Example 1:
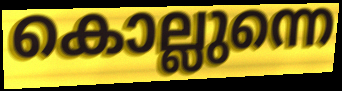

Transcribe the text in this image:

കൊല്ലുന്നെ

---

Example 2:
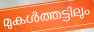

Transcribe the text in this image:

മുകൾത്തട്ടിലും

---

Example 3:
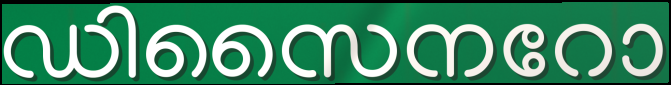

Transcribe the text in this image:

ഡിസൈനറോ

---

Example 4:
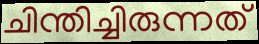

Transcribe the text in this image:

ചിന്തിച്ചിരുന്നത്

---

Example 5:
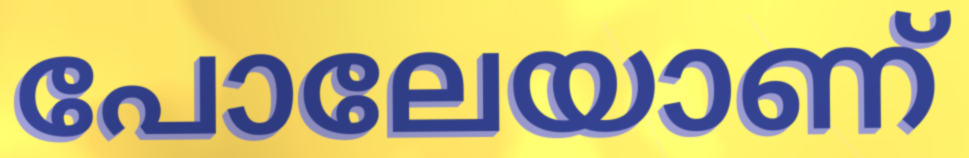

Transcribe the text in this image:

പോലേയാണ്